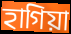
হাগিয়া